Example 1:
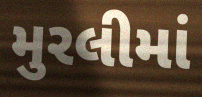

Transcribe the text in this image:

મુરલીમાં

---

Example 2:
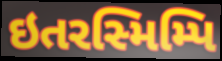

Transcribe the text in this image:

ઇતરસ્મિમ્પિ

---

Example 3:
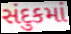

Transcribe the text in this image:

સંદુકમાં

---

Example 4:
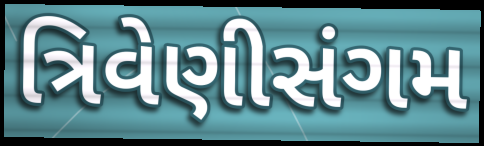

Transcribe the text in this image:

ત્રિવેણીસંગમ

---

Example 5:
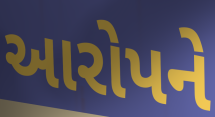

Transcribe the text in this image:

આરોપને